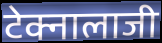
टेक्नालाजी